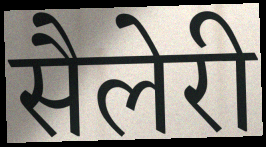
सैलेरी